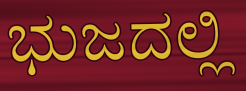
ಭುಜದಲ್ಲಿ